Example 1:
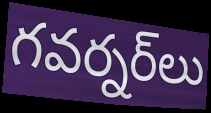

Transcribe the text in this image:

గవర్నర్‌లు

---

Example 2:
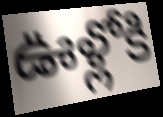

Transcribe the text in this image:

ఊళ్లోకి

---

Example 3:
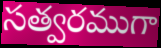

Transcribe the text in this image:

సత్వరముగా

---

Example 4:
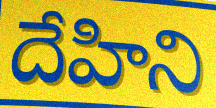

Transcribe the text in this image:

దేహిని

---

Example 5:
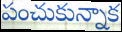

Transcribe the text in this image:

పంచుకున్నాక